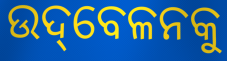
ଉଦ୍‌ବେଳନକୁ